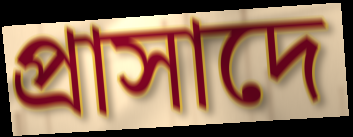
প্রাসাদে